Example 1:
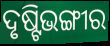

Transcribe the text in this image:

ଦୃଷ୍ଟିଭଙ୍ଗୀର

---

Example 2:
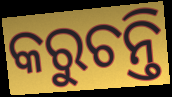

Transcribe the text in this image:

କରୁଚନ୍ତି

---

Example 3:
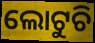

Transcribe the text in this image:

ଲୋଟୁଚି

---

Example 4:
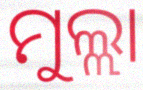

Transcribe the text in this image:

ମୁଲ୍ଲା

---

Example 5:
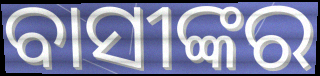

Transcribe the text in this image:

ବାସୀଙ୍କର